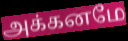
அக்கனமே